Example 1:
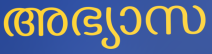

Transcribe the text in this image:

അഭ്യാസ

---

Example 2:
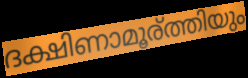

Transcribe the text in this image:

ദക്ഷിണാമൂര്ത്തിയും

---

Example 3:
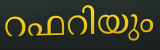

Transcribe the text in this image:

റഫറിയും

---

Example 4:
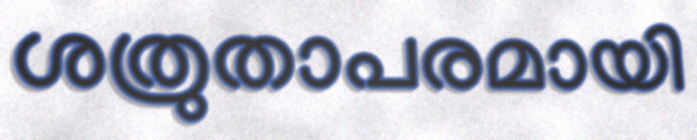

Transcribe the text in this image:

ശത്രുതാപരമായി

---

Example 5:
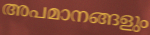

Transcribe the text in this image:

അപമാനങ്ങളും